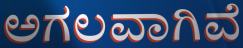
ಅಗಲವಾಗಿವೆ